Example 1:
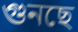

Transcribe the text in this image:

গুনছে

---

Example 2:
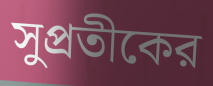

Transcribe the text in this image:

সুপ্রতীকের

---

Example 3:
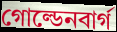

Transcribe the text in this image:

গোল্ডেনবার্গ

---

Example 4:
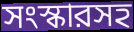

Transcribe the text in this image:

সংস্কারসহ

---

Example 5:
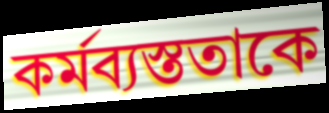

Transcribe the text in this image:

কর্মব্যস্ততাকে